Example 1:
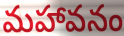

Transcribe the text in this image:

మహావనం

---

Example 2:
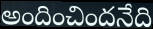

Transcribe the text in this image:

అందించిందనేది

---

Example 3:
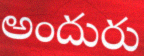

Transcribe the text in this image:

అందురు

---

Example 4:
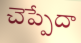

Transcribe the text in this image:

చెప్పేదా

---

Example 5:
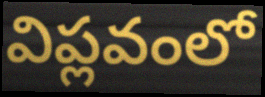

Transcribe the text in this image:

విప్లవంలో